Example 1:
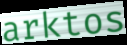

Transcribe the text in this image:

arktos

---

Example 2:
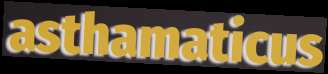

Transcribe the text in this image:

asthamaticus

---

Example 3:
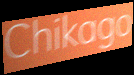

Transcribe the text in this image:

Chikago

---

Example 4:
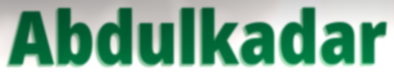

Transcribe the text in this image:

Abdulkadar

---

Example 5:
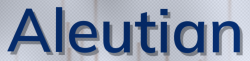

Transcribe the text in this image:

Aleutian